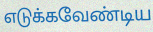
எடுக்கவேண்டிய